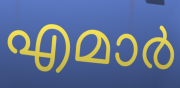
എമാർ